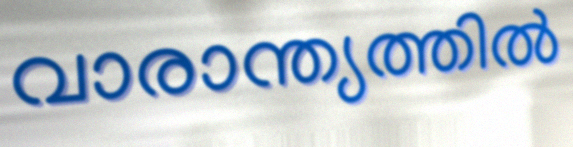
വാരാന്ത്യത്തിൽ